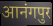
आनंगपुर